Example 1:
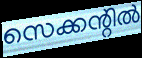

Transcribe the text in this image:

സെക്കന്റിൽ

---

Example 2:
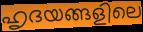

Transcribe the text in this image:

ഹൃദയങ്ങളിലെ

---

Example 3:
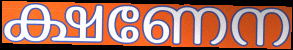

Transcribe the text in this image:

ക്ഷണേന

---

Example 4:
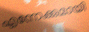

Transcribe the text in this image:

എന്നേക്കുമായി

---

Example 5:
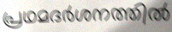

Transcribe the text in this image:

പ്രഥമദർശനത്തിൽ